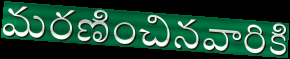
మరణించినవారికి